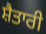
ਸ਼ੈਤਾਰੀ